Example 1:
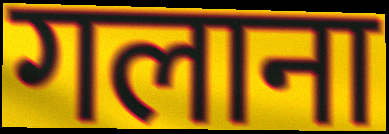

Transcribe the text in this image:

गलाना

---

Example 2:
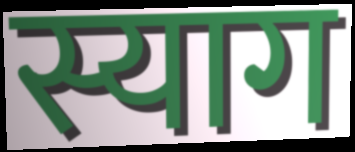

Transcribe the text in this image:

स्याग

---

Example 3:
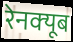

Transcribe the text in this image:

रेनक्यूब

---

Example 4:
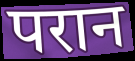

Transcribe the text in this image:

परान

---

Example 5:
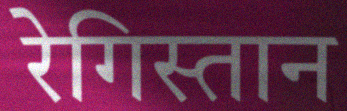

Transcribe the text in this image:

रेगिस्तान